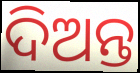
ଦିଅନ୍ତ